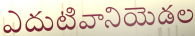
ఎదుటివానియెడల